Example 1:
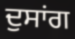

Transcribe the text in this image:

ਦੁਸਾਂਗ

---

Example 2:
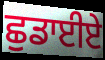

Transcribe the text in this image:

ਛੁਡਾਈਏ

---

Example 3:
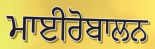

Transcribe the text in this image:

ਮਾਈਰੋਬਾਲਨ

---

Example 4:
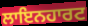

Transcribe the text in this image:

ਲਾਇਨਹਾਰਟ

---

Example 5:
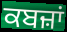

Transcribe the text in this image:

ਕਬਜ਼ਾਂ